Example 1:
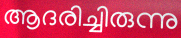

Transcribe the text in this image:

ആദരിച്ചിരുന്നു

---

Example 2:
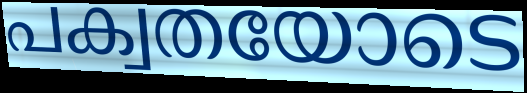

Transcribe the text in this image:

പക്വതയോടെ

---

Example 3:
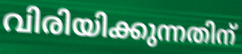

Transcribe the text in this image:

വിരിയിക്കുന്നതിന്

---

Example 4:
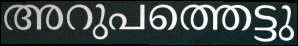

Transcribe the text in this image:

അറുപത്തെട്ടു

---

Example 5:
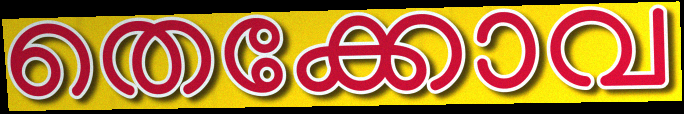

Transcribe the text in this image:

തെക്കോവ